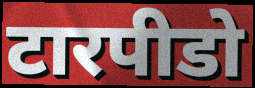
टारपीडो